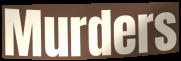
Murders